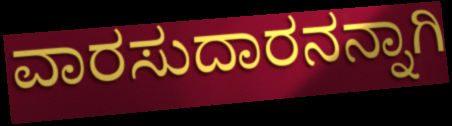
ವಾರಸುದಾರನನ್ನಾಗಿ